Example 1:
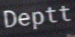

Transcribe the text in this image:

Deptt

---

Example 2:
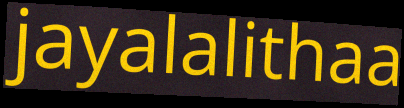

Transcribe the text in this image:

jayalalithaa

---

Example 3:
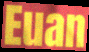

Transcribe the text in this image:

Euan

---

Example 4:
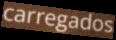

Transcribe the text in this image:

carregados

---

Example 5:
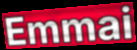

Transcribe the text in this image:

Emmai